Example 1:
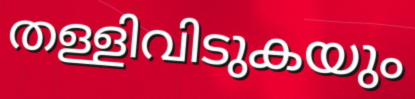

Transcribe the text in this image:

തള്ളിവിടുകയും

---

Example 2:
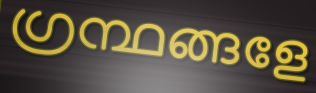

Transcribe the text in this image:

ഗ്രന്ഥങ്ങളേ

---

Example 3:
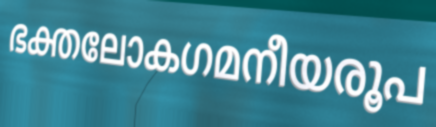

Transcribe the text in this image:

ഭക്തലോകഗമനീയരൂപ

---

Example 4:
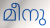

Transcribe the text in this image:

മീനു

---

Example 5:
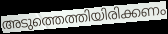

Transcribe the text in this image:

അടുത്തെത്തിയിരിക്കണം